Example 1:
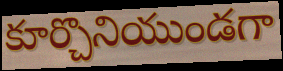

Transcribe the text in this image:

కూర్చొనియుండగా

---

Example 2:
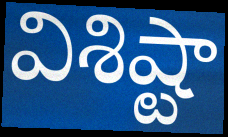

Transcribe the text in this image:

విశిష్టా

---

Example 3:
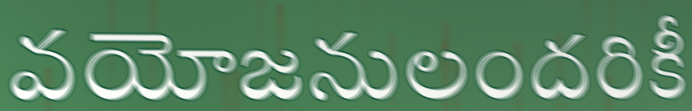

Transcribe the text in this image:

వయోజనులందరికీ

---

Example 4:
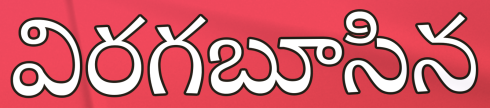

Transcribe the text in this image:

విరగబూసిన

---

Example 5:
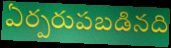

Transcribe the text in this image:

ఏర్పరుపబడినది